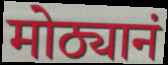
मोठ्यानं